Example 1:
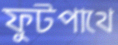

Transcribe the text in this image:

ফুটপাথে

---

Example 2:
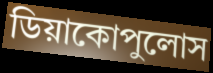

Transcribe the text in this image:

ডিয়াকোপুলোস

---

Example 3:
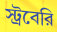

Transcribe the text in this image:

স্ট্রবেরি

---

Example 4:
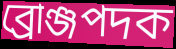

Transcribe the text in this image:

ব্রোঞ্জপদক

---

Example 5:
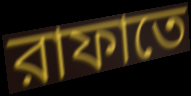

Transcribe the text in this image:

রাফাতে